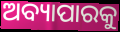
ଅବ୍ୟାପାରକୁ